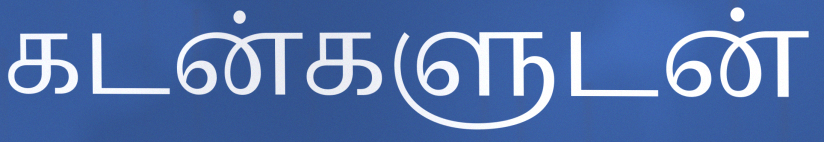
கடன்களுடன்